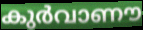
കുർവാണൗ